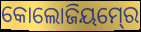
କୋଲୋଜିୟମ୍‍ରେ